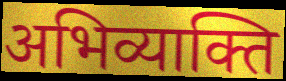
अभिव्याक्ति